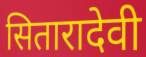
सितारादेवी